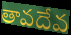
తావదేవ